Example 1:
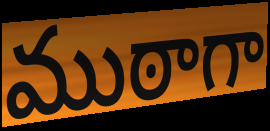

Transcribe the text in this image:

ముఠాగా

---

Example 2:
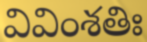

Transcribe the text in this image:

వివింశతిః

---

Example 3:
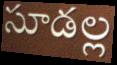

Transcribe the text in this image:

సూడల్ల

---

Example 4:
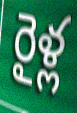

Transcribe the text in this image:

రైళ్ల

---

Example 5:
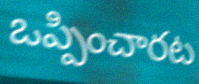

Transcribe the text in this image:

ఒప్పించారట